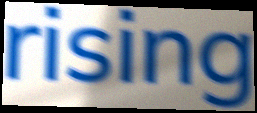
rising